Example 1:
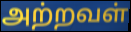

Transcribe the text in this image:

அற்றவள்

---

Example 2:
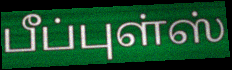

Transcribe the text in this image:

பீப்புள்ஸ்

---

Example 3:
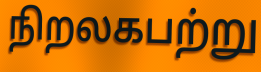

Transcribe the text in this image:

நிறலகபற்று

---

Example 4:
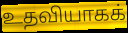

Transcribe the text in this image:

உதவியாகக்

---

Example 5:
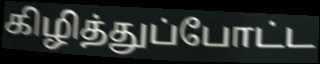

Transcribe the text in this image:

கிழித்துப்போட்ட